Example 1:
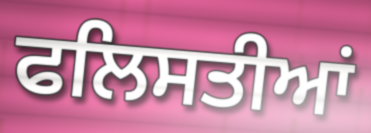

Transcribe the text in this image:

ਫਲਿਸਤੀਆਂ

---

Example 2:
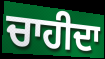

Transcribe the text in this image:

ਚਾਹੀਦਾ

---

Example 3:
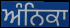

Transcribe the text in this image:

ਅੰਨਿਕਾ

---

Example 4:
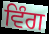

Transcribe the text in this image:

ਵਿੰਗ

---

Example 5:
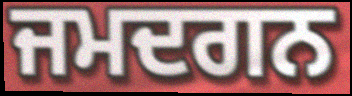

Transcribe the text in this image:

ਜਮਦਗਨ